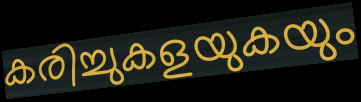
കരിച്ചുകളയുകയും